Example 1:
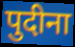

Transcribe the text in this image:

पुदीना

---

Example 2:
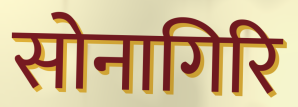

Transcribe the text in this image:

सोनागिरि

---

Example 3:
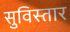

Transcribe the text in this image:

सुविस्तार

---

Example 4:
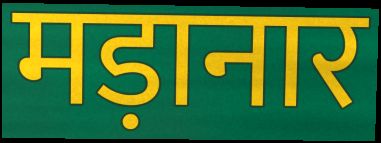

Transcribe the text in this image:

मड़ानार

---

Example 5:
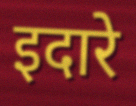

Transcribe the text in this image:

इदारे